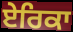
ਏਰਿਕਾ